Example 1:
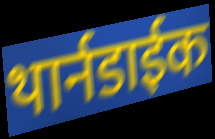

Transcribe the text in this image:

थार्नडाईक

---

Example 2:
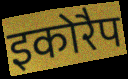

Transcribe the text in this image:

इकोरैप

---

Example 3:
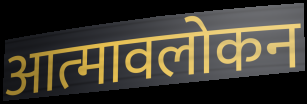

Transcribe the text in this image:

आत्‍मावलोकन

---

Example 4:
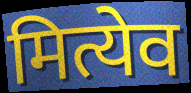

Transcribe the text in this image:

मित्येव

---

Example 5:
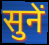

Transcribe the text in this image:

सुनें